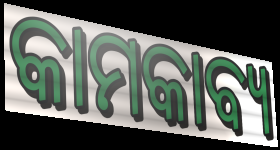
କାମକାବ୍ୟ